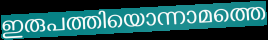
ഇരുപത്തിയൊന്നാമത്തെ